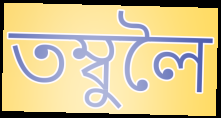
তম্বুলৈ